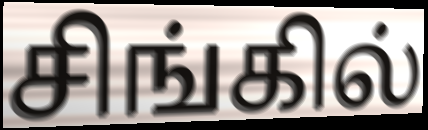
சிங்கில்